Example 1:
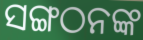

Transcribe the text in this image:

ସଙ୍ଗଠନଙ୍କ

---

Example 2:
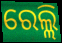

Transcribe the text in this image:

ରେଲ୍ଲି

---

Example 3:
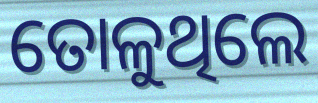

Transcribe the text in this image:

ତୋଳୁଥିଲେ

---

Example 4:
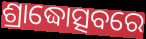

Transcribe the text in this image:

ଶ୍ରାଦ୍ଧୋତ୍ସବରେ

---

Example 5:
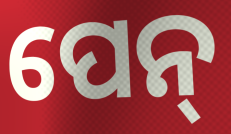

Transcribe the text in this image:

ପେନ୍